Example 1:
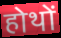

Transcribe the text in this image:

होथों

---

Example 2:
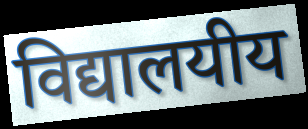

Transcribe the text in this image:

विद्यालयीय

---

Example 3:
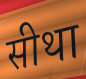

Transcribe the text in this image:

सीथा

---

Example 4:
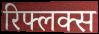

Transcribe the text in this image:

रिफ्लक्स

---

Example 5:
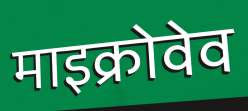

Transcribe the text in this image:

माइक्रोवेव